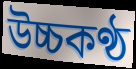
উচ্চকণ্ঠ